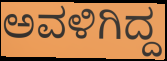
ಅವಳಿಗಿದ್ದ